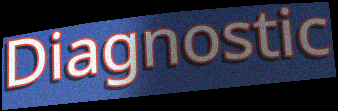
Diagnostic